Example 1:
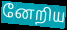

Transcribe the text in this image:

னேறிய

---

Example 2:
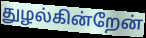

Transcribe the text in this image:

துழல்கின்றேன்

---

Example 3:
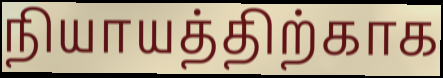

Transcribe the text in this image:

நியாயத்திற்காக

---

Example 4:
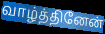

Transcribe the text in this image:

வாழ்த்தினேன்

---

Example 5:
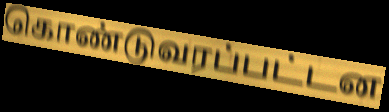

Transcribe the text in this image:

கொண்டுவரப்பட்டன